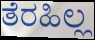
ತೆರಹಿಲ್ಲ